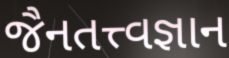
જૈનતત્ત્વજ્ઞાન